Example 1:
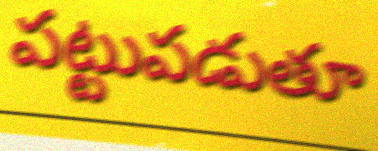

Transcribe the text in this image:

పట్టుపడుతూ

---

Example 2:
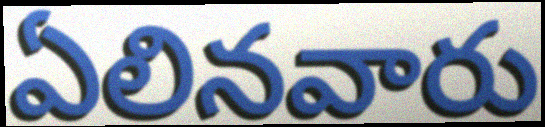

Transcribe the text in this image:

ఏలినవారు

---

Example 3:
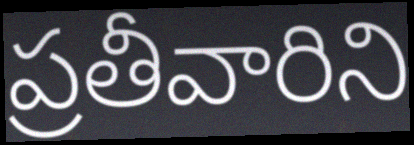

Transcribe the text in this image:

ప్రతీవారిని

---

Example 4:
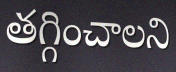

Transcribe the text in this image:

తగ్గించాలని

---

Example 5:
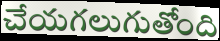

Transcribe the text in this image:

చేయగలుగుతోంది